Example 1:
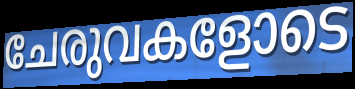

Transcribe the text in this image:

ചേരുവകളോടെ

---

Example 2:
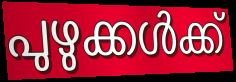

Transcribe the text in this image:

പുഴുക്കൾക്ക്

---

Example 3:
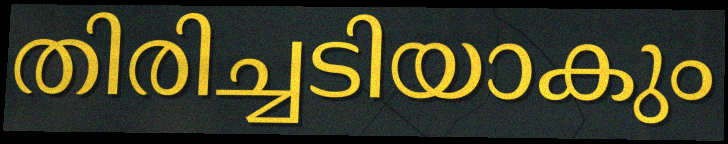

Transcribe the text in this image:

തിരിച്ചടിയാകും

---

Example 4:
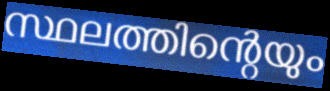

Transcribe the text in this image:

സ്ഥലത്തിന്റെയും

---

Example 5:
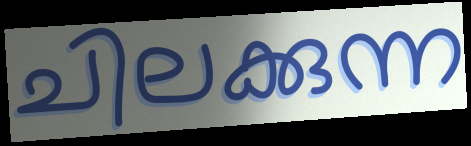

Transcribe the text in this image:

ചിലക്കുന്ന